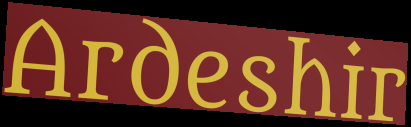
Ardeshir